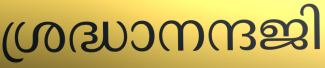
ശ്രദ്ധാനന്ദജി